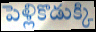
పెళ్లికొడుక్కి